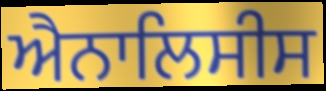
ਐਨਾਲਿਸੀਸ